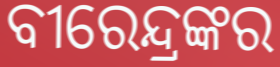
ବୀରେନ୍ଦ୍ରଙ୍କର